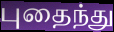
புதைந்து